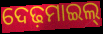
ଦେଢ଼ମାଇଲ୍